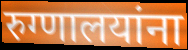
रुग्णालयांना